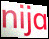
nija